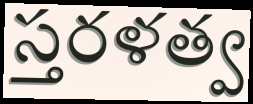
స్తరళత్వ